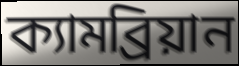
ক্যামব্রিয়ান